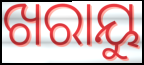
ଖରାୟୁ